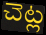
చెట్ల